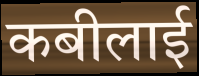
कबीलाई